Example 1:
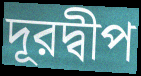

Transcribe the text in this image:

দূরদ্বীপ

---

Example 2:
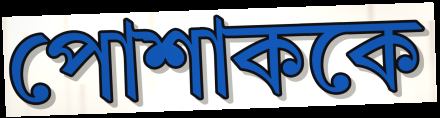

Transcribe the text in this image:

পোশাককে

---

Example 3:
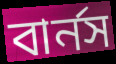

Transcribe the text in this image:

বার্নস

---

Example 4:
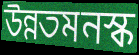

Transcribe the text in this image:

উন্নতমনস্ক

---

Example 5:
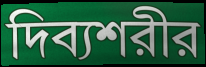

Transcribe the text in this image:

দিব্যশরীর